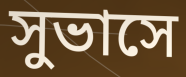
সুভাসে